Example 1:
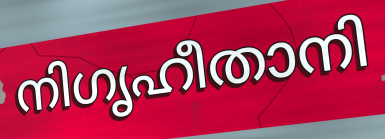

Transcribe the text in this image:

നിഗൃഹീതാനി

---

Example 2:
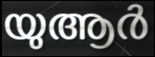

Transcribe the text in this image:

യുആർ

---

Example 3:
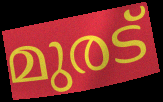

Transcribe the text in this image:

മുരട്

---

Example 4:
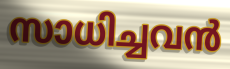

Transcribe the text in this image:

സാധിച്ചവൻ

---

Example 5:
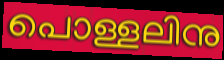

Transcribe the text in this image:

പൊള്ളലിനു